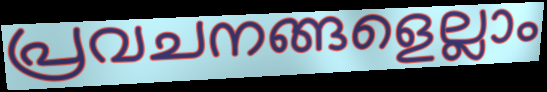
പ്രവചനങ്ങളെല്ലാം